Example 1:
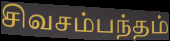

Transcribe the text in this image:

சிவசம்பந்தம்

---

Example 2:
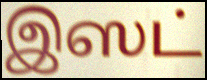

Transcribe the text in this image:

இஸட்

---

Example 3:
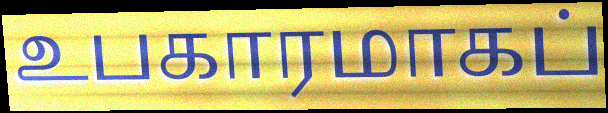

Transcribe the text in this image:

உபகாரமாகப்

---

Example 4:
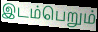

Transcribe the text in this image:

இடம்பெறும்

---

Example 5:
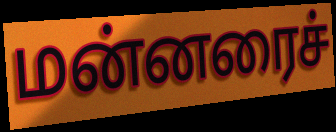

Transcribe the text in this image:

மன்னரைச்